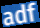
adf